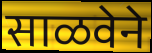
साळवेने